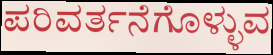
ಪರಿವರ್ತನೆಗೊಳ್ಳುವ